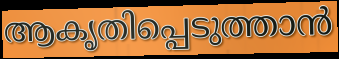
ആകൃതിപ്പെടുത്താൻ